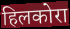
हिलकोरा